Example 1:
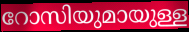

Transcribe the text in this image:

റോസിയുമായുള്ള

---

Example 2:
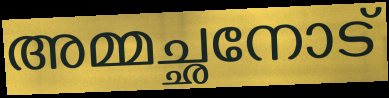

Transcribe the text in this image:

അമ്മച്ഛനോട്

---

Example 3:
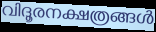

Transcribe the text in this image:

വിദൂരനക്ഷത്രങ്ങൾ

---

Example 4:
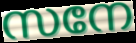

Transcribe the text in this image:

സനേ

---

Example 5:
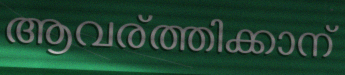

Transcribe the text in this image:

ആവര്ത്തിക്കാന്